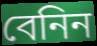
বেনিন